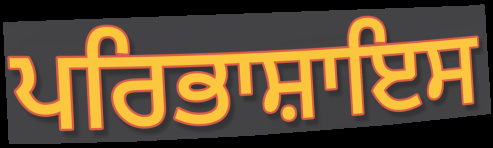
ਪਰਿਭਾਸ਼ਾਇਸ